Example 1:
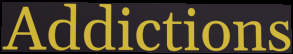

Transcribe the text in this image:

Addictions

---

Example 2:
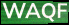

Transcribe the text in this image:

WAQF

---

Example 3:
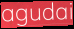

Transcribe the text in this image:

agudai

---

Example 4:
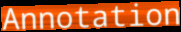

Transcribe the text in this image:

Annotation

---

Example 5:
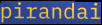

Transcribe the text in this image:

pirandai